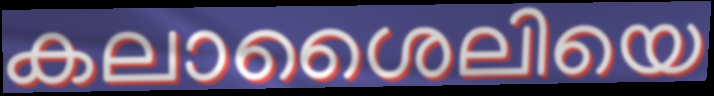
കലാശൈലിയെ